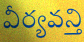
వీర్యవన్తి